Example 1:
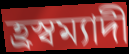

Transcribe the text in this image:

হ্ৰস্বম্যাদী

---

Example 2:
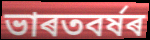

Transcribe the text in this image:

ভাৰতবৰ্ষৰ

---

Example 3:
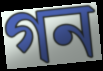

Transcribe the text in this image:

গন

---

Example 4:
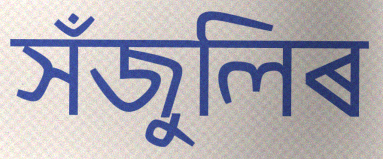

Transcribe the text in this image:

সঁজুলিৰ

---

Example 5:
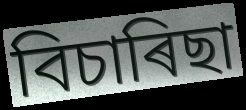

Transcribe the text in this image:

বিচাৰিছা